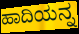
ಹಾದಿಯನ್ನ